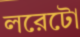
লরেটো